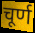
चूर्ण